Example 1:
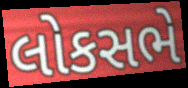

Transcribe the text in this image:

લોકસભે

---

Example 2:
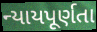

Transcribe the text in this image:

ન્યાયપૂર્ણતા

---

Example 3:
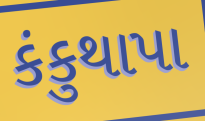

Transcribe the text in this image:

કંકુથાપા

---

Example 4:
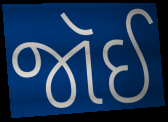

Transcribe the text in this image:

જૉઈ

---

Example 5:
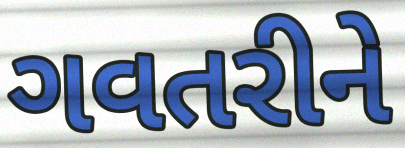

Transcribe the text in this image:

ગવતરીને